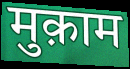
मुक़ाम